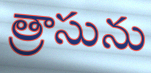
త్రాసును